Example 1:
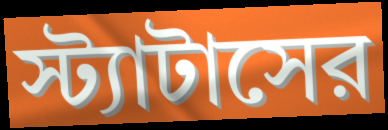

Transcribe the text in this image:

স্ট্যাটাসের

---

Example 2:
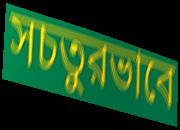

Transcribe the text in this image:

সচতুরভাবে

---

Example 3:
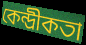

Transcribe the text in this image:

কেন্দ্রীকতা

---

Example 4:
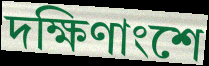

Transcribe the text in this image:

দক্ষিণাংশে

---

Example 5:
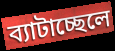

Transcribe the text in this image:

ব্যাটাচ্ছেলে